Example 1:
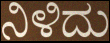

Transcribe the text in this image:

ನಿಳಿದು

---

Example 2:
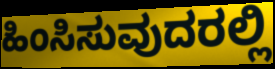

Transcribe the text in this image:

ಹಿಂಸಿಸುವುದರಲ್ಲಿ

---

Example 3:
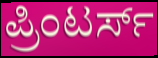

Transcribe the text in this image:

ಪ್ರಿಂಟರ್ಸ್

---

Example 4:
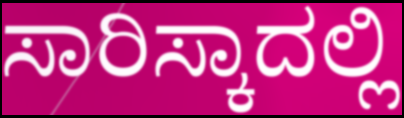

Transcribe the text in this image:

ಸಾರಿಸ್ಕಾದಲ್ಲಿ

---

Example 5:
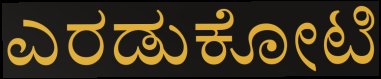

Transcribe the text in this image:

ಎರಡುಕೋಟಿ